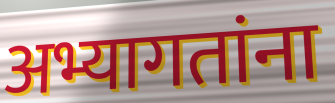
अभ्यागतांना